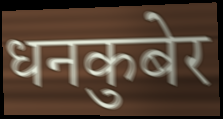
धनकुबेर